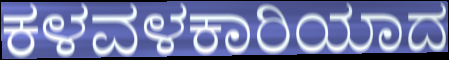
ಕಳವಳಕಾರಿಯಾದ